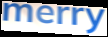
merry